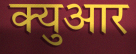
क्युआर